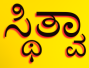
ಸ್ಥಿತ್ವಾ